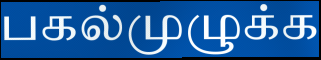
பகல்முழுக்க